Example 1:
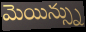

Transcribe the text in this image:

మెయిన్స్ను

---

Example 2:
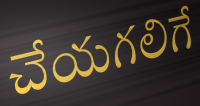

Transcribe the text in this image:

చేయగలిగే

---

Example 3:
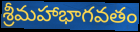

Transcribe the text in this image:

శ్రీమహాభాగవతం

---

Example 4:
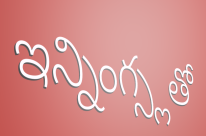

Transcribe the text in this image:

ఇన్నింగ్స్లతో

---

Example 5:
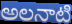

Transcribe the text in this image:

అలనాటి